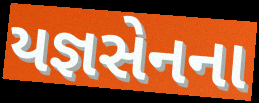
યજ્ઞસેનના